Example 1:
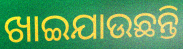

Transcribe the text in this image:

ଖାଇଯାଉଛନ୍ତି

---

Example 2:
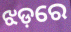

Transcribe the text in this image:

ଝଡ଼ରେ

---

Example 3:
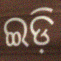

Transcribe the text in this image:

ଇଡ଼ି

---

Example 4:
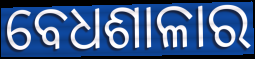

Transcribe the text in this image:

ବେଧଶାଳାର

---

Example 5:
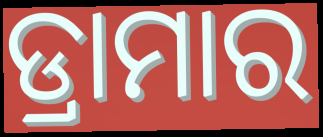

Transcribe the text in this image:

ଡ୍ରାମାର